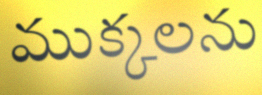
ముక్కలను